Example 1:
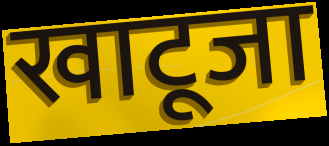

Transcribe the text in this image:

खाटूजा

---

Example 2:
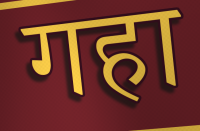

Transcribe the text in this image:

गहा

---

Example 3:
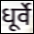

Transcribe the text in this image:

धूर्वे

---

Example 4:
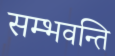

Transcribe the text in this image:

सम्भवन्ति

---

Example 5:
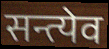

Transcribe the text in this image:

सन्त्येव